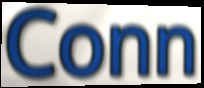
Conn